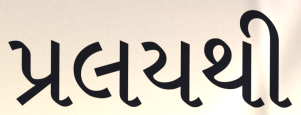
પ્રલયથી